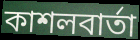
কাশলবার্তা